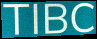
TIBC